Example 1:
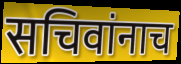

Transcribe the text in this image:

सचिवांनाच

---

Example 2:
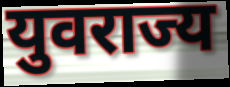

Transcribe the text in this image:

युवराज्य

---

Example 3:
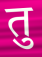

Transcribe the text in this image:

तु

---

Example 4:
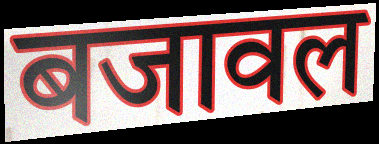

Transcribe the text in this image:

बजावल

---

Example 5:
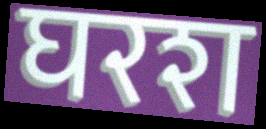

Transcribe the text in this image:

घरश